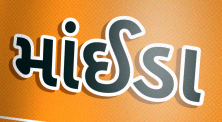
માંઈડા